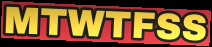
MTWTFSS